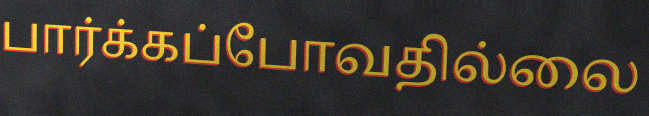
பார்க்கப்போவதில்லை